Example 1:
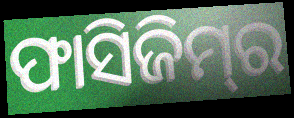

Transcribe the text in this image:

ଫାସିଜିମ୍‌ର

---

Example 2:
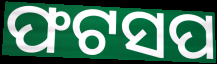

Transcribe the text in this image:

ଫଟସପ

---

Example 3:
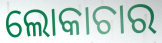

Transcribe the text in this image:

ଲୋକାଚାର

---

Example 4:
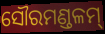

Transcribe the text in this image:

ସୌରମଣ୍ଡଳମ୍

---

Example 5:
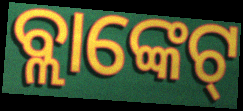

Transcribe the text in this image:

ବ୍ଲାଙ୍କେଟ୍